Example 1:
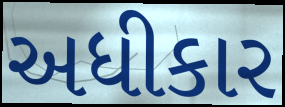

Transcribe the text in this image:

અધીકાર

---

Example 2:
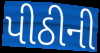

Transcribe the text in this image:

પીઠીની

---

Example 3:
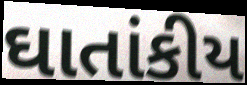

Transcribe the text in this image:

ઘાતાંકીય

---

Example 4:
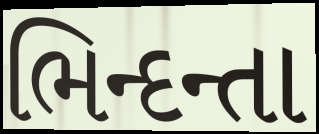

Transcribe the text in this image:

ભિન્દન્તા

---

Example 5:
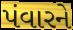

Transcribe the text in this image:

પંવારને